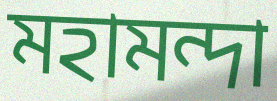
মহামন্দা